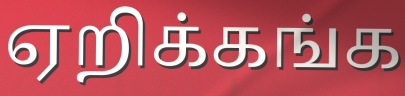
ஏறிக்கங்க